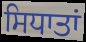
ਸਿਧਾਤਾਂ